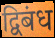
द्विबंध